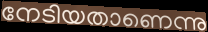
നേടിയതാണെന്നു